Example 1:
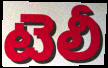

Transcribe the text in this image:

టెలీ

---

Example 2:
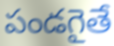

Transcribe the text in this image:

పండగైతే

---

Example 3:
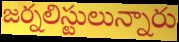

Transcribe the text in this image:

జర్నలిస్టులున్నారు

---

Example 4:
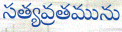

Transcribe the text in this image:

సత్యవ్రతమును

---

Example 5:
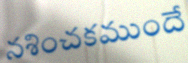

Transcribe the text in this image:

నశించకముందే